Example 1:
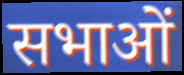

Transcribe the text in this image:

सभाओं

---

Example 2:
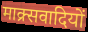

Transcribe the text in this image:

माक्र्सवादियों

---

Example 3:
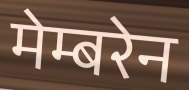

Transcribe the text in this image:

मेम्बरेन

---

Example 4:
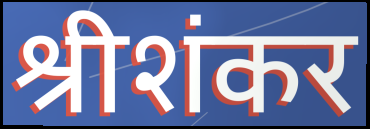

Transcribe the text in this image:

श्रीशंकर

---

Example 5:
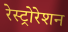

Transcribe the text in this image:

रेस्ट्रोरेशन